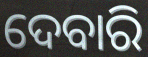
ଦେବାରି